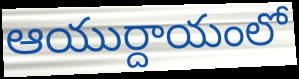
ఆయుర్దాయంలో